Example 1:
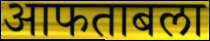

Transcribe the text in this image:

आफताबला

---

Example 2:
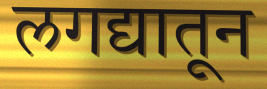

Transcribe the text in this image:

लगद्यातून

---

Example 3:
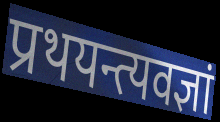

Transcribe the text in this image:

प्रथयन्त्यवज्ञां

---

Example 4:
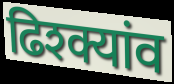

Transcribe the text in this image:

ढिश्क्यांव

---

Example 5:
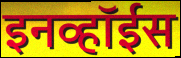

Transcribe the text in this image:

इनव्हॉईस